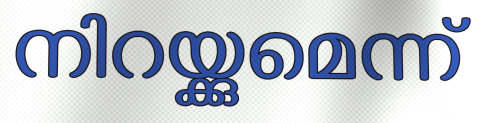
നിറയ്ക്കുമെന്ന്